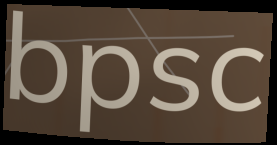
bpsc